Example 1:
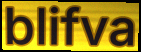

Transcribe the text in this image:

blifva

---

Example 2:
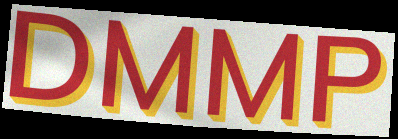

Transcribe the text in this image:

DMMP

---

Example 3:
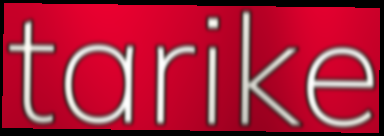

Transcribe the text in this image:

tarike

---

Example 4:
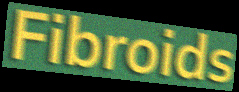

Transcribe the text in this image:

Fibroids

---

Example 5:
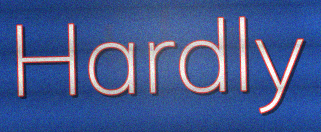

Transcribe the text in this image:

Hardly